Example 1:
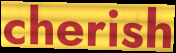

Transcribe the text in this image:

cherish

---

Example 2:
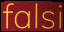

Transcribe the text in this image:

falsi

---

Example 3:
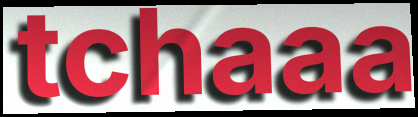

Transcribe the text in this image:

tchaaa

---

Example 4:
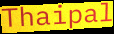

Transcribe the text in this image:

Thaipal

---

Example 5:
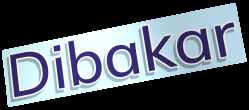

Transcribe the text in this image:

Dibakar